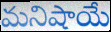
మనిషాయే